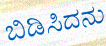
ಬಿಡಿಸಿದನು